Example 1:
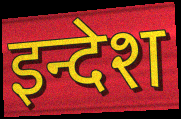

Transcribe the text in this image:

इन्देश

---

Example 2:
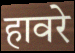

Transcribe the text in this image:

हावरे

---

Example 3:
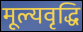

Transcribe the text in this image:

मूल्यवृद्धि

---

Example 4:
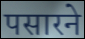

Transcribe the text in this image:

पसारने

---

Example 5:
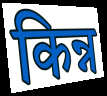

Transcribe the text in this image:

किन्न